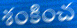
శంకించ